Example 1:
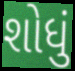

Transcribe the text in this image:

શોધું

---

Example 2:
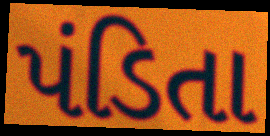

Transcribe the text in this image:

પંડિતા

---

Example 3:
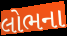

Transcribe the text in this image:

લોભના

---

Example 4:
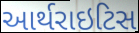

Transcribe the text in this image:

આર્થરાઇટિસ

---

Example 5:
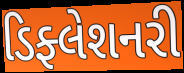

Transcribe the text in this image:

ડિફ્લેશનરી